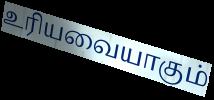
உரியவையாகும்